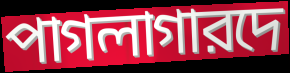
পাগলাগারদে